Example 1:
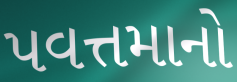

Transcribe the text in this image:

પવત્તમાનો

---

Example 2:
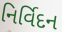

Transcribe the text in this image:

નિર્વિદન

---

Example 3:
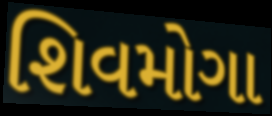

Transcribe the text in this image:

શિવમોગા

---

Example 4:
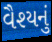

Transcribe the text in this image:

વૈશ્યનું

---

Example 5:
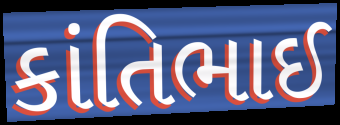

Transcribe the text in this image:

કાંતિભાઈ